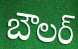
బౌలర్